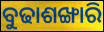
ବୁଢାଶଙ୍ଖାରି